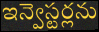
ఇన్వెస్టర్లను